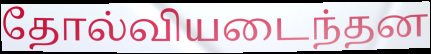
தோல்வியடைந்தன